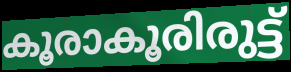
കൂരാകൂരിരുട്ട്